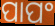
ପାପଂ